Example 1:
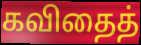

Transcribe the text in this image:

கவிதைத்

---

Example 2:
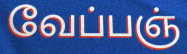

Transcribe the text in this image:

வேப்பஞ்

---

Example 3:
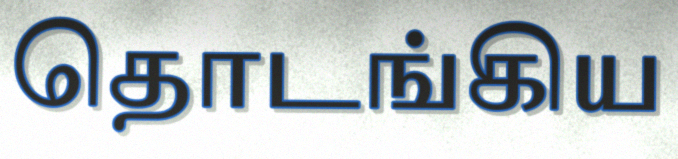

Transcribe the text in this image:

தொடங்கிய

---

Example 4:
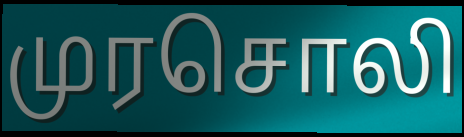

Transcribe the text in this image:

முரசொலி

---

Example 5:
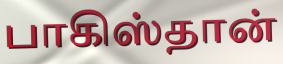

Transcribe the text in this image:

பாகிஸ்தான்